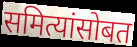
समित्यांसोबत